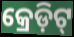
କ୍ରେଡ଼ିଟ୍